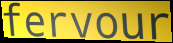
fervour